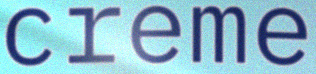
creme